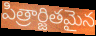
పిత్రార్జితమైన